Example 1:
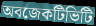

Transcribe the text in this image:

অবজেকটিভিটি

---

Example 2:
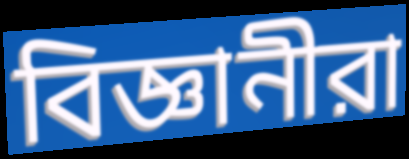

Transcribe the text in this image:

বিজ্ঞানীরা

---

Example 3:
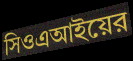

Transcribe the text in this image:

সিওএআইয়ের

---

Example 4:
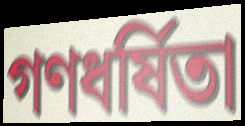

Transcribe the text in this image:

গণধর্ষিতা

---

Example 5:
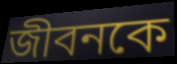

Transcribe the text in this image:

জীবনকে